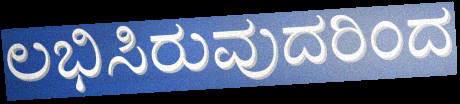
ಲಭಿಸಿರುವುದರಿಂದ